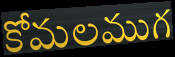
కోమలముగ